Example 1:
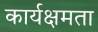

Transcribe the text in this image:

कार्यक्षमता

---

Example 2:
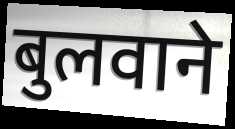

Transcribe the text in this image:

बुलवाने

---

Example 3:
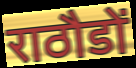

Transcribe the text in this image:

राठौडों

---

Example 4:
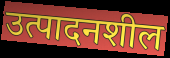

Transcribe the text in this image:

उत्पादनशील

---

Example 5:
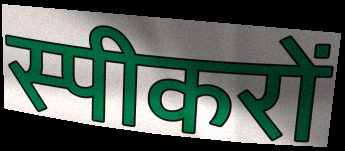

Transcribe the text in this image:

स्पीकरों